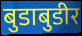
बुडाबुडीर